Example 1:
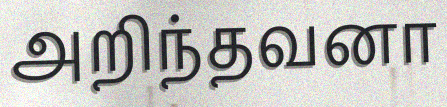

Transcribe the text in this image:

அறிந்தவனா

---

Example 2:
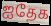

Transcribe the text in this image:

ஐதேக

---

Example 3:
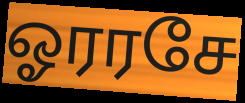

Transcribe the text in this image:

ஓரரசே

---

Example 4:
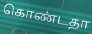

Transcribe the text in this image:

கொண்டதா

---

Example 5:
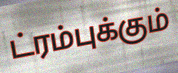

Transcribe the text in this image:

ட்ரம்புக்கும்